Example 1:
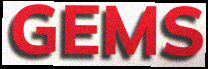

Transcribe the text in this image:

GEMS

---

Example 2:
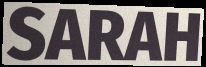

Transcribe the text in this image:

SARAH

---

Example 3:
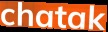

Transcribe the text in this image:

chatak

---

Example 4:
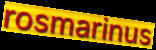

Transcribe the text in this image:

rosmarinus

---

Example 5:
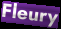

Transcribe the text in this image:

Fleury